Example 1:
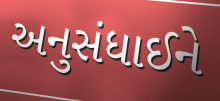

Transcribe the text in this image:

અનુસંધાઈને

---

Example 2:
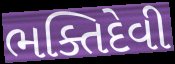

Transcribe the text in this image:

ભક્તિદેવી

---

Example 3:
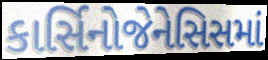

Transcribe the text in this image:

કાર્સિનોજેનેસિસમાં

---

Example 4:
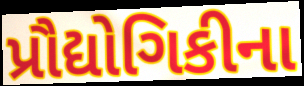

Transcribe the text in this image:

પ્રૌદ્યોગિકીના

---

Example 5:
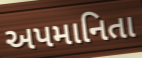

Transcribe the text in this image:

અપમાનિતા